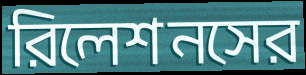
রিলেশনসের